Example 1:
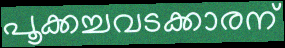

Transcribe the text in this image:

പൂക്കച്ചവടക്കാരന്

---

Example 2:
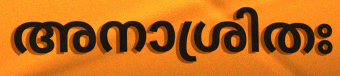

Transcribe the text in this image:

അനാശ്രിതഃ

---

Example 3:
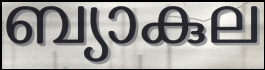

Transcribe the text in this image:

ബ്യാകുല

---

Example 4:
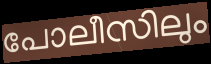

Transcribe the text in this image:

പോലീസിലും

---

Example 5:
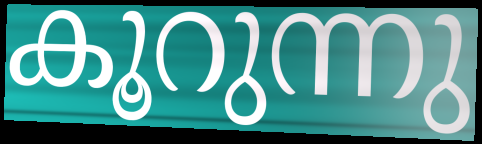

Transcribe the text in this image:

കൂറുന്നു